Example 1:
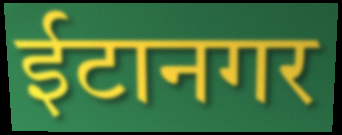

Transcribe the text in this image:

ईटानगर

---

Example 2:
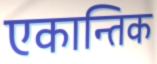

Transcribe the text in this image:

एकान्तिक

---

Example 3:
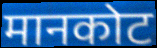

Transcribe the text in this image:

मानकोट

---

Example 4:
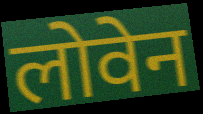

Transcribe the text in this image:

लोवेन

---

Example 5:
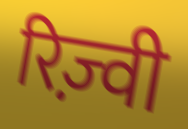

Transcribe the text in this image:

रिज़्वी